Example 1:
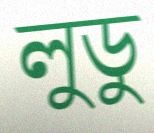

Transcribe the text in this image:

লুডু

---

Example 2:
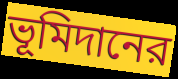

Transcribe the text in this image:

ভূমিদানের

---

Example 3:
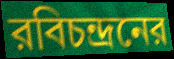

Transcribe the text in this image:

রবিচন্দ্রনের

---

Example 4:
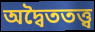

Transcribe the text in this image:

অদ্বৈততত্ত্ব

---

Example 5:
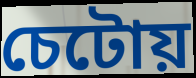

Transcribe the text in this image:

চেটোয়